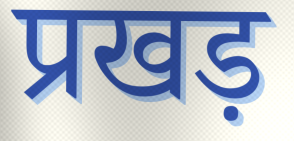
प्रखड़